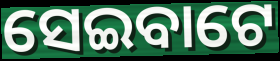
ସେଇବାଟେ